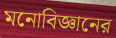
মনোবিজ্ঞানের